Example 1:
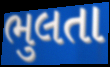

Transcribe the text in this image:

ભુલતા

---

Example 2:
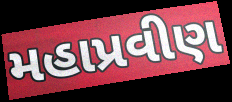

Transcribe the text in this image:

મહાપ્રવીણ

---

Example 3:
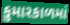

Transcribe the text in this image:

કુમારકાળમાં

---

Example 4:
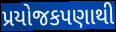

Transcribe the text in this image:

પ્રયોજકપણાથી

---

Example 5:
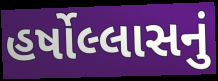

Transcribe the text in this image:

હર્ષોલ્લાસનું